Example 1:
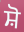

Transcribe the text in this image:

ਸ਼ੋ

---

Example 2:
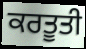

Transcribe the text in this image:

ਕਰਤੂਤੀ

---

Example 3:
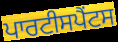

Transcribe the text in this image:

ਪਾਰਟੀਸਪੈਂਟਸ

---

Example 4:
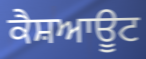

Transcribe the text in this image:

ਕੈਸ਼ਆਊਟ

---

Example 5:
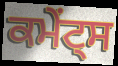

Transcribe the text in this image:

ਕਮੇਂਟ੍ਸ